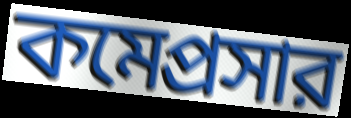
কমেপ্রসার